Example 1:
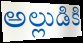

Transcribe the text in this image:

అల్లుడికి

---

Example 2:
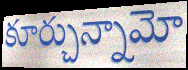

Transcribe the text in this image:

కూర్చున్నామో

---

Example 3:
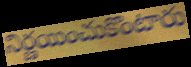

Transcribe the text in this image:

నిర్ణయించుకొంటారు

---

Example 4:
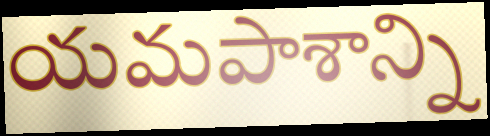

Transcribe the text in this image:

యమపాశాన్ని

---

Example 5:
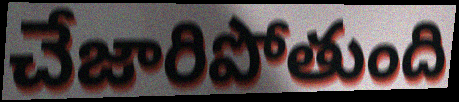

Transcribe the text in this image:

చేజారిపోతుంది